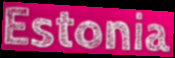
Estonia